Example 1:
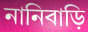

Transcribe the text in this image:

নানিবাড়ি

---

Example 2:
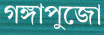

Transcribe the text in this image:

গঙ্গাপুজো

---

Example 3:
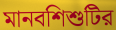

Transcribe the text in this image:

মানবশিশুটির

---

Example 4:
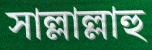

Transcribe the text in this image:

সাল্লাল্লাহু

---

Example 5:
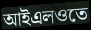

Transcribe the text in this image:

আইএলওতে